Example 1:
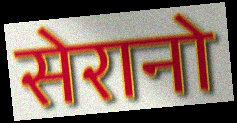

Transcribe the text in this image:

सेरानो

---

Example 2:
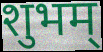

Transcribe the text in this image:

शुभम्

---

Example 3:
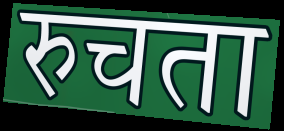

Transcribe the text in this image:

रुचता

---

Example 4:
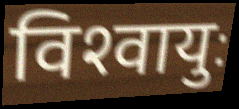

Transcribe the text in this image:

विश्वायुः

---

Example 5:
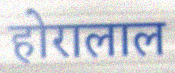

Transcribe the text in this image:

होरालाल